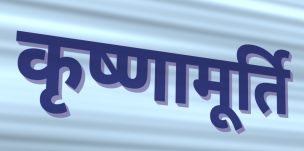
कृष्णामूर्ति